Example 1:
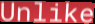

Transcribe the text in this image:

Unlike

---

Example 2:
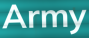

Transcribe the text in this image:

Army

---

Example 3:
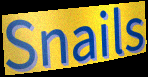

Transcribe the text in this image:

Snails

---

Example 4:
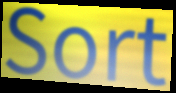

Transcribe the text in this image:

Sort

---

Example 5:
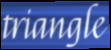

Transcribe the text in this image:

triangle